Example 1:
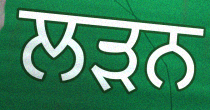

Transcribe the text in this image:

ਲੜਨ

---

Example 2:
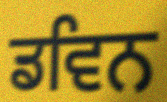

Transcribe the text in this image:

ਡਵਿਨ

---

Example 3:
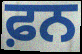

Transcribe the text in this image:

ਫ਼ਨ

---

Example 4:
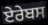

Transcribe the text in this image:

ਏਰੇਬਸ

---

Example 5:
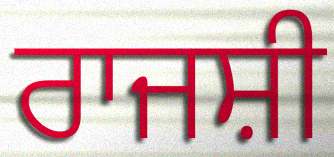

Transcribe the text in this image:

ਰਾਜਸ਼ੀ